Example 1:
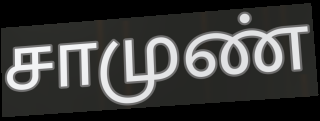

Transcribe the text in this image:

சாமுண்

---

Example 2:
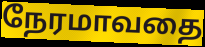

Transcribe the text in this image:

நேரமாவதை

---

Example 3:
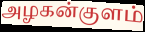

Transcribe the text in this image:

அழகன்குளம்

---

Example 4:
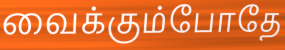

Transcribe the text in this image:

வைக்கும்போதே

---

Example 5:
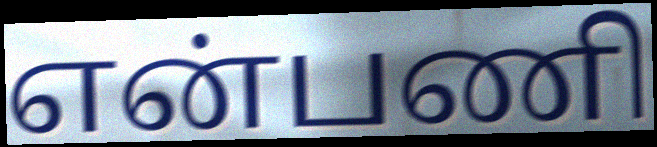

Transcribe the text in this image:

என்பணி